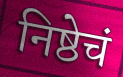
निष्ठेचं